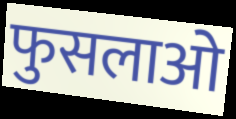
फुसलाओ